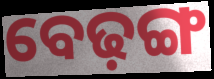
ବେଢ଼ଙ୍ଗ